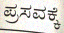
ಪ್ರಸವಕ್ಕೆ